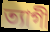
ত্যাগী